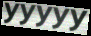
yyyyy